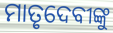
ମାତୃଦେବୀଙ୍କୁ